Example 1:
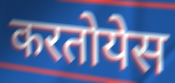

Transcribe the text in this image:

करतोयेस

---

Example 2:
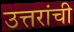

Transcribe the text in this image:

उत्तरांची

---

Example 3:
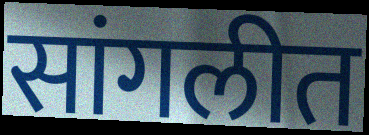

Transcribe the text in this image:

सांगलीत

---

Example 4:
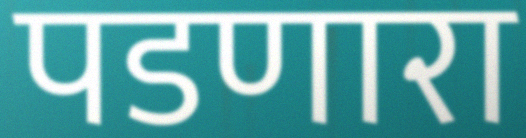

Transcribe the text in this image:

पडणारा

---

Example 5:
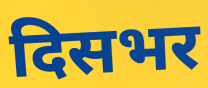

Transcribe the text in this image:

दिसभर